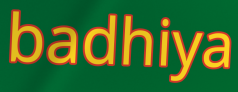
badhiya